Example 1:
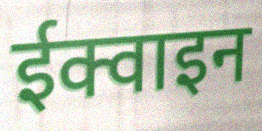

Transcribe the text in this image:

ईक्वाइन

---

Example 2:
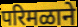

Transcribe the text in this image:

परिमळाने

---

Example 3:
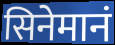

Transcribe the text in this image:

सिनेमानं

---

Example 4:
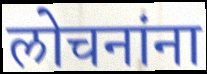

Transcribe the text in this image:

लोचनांना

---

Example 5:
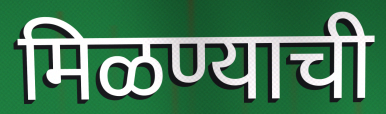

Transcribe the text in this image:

मिळण्याची